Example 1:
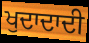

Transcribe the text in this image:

ਖੁਦਾਦਾਦੀ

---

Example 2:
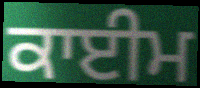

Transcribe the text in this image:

ਕਾਈਮ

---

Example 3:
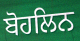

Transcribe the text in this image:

ਬੋਹਲਿਨ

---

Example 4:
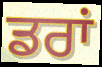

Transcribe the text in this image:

ਡਰਾਂ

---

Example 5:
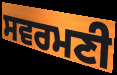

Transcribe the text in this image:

ਸਵਰਮਣੀ